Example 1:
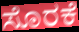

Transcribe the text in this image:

ಸೊರಕೆ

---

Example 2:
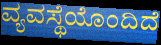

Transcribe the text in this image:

ವ್ಯವಸ್ಥೆಯೊಂದಿದೆ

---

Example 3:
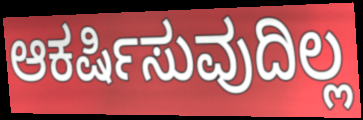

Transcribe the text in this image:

ಆಕರ್ಷಿಸುವುದಿಲ್ಲ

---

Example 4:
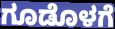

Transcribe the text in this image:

ಗೂಡೊಳಗೆ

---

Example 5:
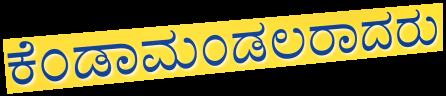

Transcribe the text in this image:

ಕೆಂಡಾಮಂಡಲರಾದರು